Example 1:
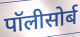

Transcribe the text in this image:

पॉलीसोर्ब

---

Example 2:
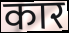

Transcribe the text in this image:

कार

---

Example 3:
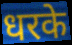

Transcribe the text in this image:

धरके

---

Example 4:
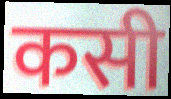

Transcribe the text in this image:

कसी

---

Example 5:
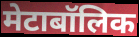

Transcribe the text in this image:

मेटाबॉलिक